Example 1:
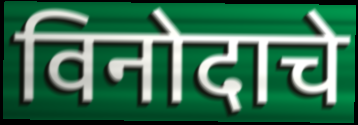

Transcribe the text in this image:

विनोदाचे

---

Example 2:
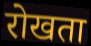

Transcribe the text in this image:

रोखता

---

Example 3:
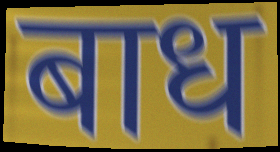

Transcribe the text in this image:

बाध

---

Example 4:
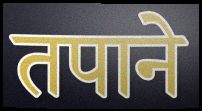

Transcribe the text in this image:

तपाने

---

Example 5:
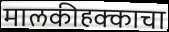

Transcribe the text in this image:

मालकीहक्काचा